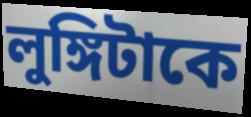
লুঙ্গিটাকে